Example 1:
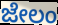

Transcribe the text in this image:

ಜೇಲಂ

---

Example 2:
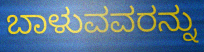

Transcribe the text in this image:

ಬಾಳುವವರನ್ನು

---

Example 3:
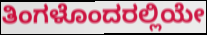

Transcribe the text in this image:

ತಿಂಗಳೊಂದರಲ್ಲಿಯೇ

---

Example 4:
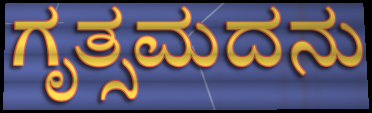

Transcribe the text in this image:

ಗೃತ್ಸಮದನು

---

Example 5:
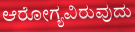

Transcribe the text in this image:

ಆರೋಗ್ಯವಿರುವುದು